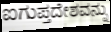
ಐಗುಪ್ತದೇಶವನ್ನು